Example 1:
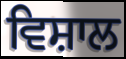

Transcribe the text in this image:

ਵਿਸ਼ਾਲ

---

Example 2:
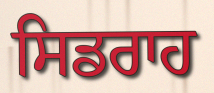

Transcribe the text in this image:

ਸਿਡਰਾਹ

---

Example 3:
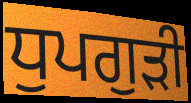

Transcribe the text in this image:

ਧੁਪਗੁੜੀ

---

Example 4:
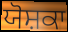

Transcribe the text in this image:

ਯੋਸ਼ਕਾ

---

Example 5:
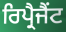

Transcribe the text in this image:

ਰਿਪ੍ਰੈਜੈਂਟ